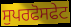
ਸੁਪਰਫੋਸਫੇਟ